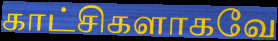
காட்சிகளாகவே